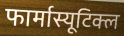
फार्मास्यूटिक्ल